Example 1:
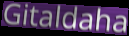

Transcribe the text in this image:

Gitaldaha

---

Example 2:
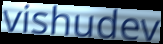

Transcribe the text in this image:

vishudev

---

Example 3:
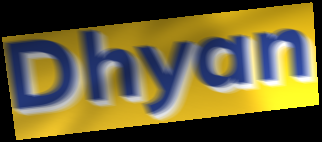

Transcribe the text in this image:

Dhyan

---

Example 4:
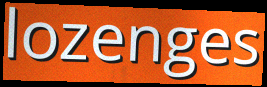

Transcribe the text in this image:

lozenges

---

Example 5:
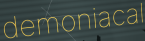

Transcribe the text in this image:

demoniacal